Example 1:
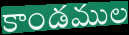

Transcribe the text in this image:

కాండముల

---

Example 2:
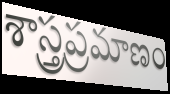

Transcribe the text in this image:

శాస్త్రప్రమాణం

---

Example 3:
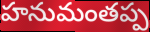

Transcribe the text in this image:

హనుమంతప్ప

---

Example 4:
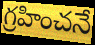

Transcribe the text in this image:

గ్రహించనే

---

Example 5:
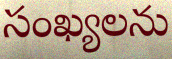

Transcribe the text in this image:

సంఖ్యలను